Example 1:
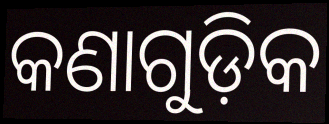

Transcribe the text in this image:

କଣାଗୁଡ଼ିକ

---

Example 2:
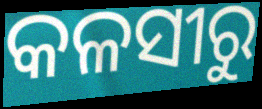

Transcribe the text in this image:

କଳସୀରୁ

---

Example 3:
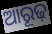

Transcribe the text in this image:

ଆରୂଢ଼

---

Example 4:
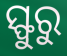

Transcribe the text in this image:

ସ୍ଫୁରୁ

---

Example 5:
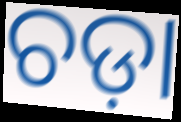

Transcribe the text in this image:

ଚଡ଼ା